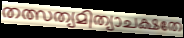
തത്സത്യമിത്യാചക്ഷതേ